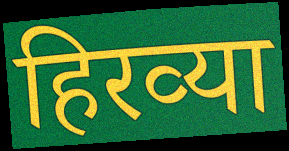
हिरव्‍या